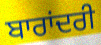
ਬਾਰਾਂਦਰੀ